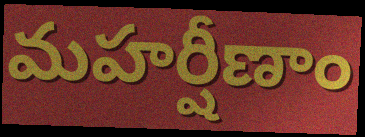
మహర్షీణాం